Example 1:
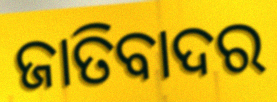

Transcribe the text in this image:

ଜାତିବାଦର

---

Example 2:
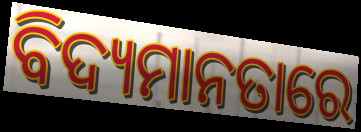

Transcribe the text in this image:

ବିଦ୍ୟମାନତାରେ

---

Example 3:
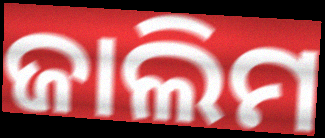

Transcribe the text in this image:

ଜାଲିମ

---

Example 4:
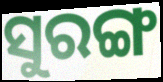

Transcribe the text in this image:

ସୁରଙ୍ଗ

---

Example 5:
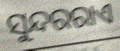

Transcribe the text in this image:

ସୁନ୍ଦରରାଏ